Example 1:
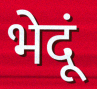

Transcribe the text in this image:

भेदूं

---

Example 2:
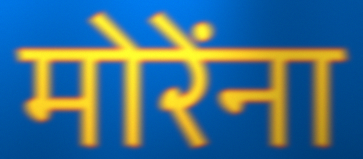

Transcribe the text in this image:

मोरेंना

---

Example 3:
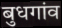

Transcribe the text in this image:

बुधगांव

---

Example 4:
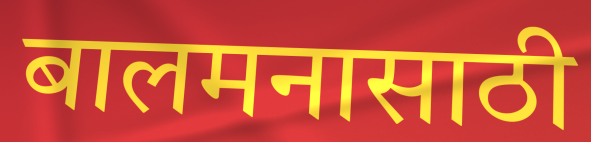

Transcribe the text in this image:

बालमनासाठी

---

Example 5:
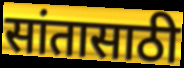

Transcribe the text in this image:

सांतासाठी